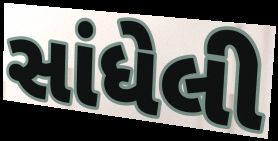
સાંધેલી